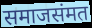
समाजसंमत